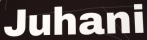
Juhani